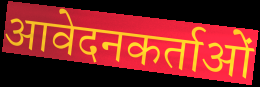
आवेदनकर्ताओं